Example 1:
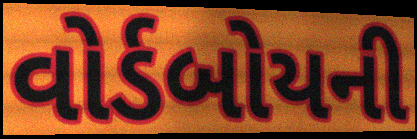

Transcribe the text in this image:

વોર્ડબોયની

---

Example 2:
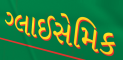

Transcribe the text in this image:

ગ્લાઈસેમિક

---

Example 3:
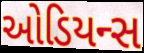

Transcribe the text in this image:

ઓડિયન્સ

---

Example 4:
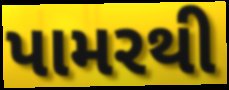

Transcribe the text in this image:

પામરથી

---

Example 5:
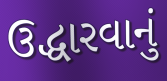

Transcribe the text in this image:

ઉદ્ધારવાનું